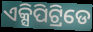
ଏକ୍ସିପିଟ୍ରିଡେ